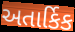
અતાર્કિક